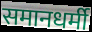
समानधर्मी